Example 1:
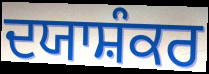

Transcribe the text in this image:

ਦਯਾਸ਼ੰਕਰ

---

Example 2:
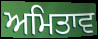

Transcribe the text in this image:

ਅਮਿਤਾਵ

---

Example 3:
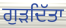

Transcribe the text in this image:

ਗੁੜਦਿੱਤਾ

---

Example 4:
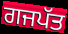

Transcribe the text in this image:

ਗਜਪੱਤ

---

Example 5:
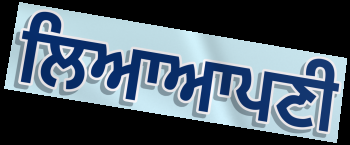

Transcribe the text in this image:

ਲਿਆਆਪਣੀ